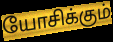
யோசிக்கும்